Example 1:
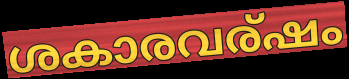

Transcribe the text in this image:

ശകാരവര്ഷം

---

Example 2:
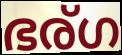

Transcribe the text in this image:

ഭര്ഗ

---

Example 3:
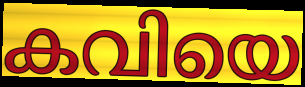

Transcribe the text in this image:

കവിയെ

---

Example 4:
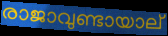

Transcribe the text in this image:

രാജാവുണ്ടായാല്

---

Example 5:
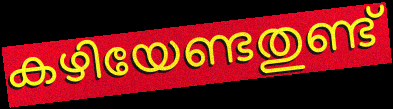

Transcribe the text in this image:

കഴിയേണ്ടതുണ്ട്